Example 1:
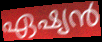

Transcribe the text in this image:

ഏഷ്യൻ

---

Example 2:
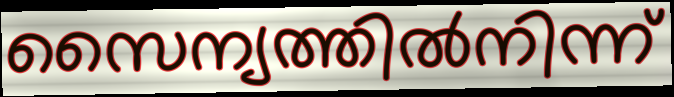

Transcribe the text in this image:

സൈന്യത്തിൽനിന്ന്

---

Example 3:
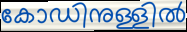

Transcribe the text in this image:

കോഡിനുള്ളിൽ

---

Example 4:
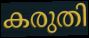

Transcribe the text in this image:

കരുതി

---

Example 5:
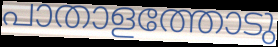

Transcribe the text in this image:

പാതാളത്തോടു